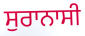
ਸੁਰਾਨਾਸੀ